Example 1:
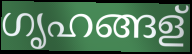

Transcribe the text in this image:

ഗൃഹങ്ങള്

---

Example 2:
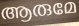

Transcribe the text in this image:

ആരുമേ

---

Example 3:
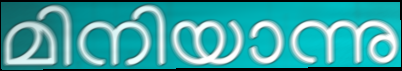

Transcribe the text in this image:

മിനിയാന്നു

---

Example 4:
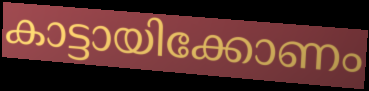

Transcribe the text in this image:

കാട്ടായിക്കോണം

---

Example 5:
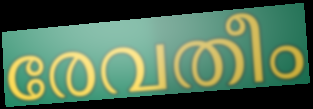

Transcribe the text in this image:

രേവതീം